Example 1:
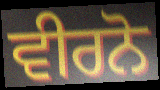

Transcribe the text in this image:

ਵੀਰਨੋ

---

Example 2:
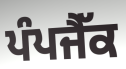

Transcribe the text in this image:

ਪੰਪਜੈੱਕ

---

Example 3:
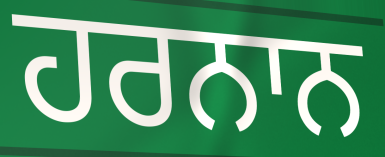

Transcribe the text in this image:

ਹਰਨਾਨ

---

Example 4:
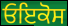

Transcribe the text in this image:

ਓਇਕੋਸ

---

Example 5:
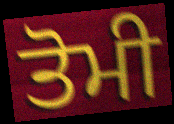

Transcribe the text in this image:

ਤੋਮੀ